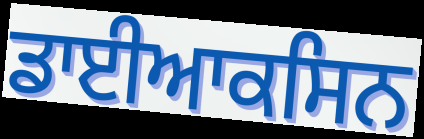
ਡਾਈਆਕਸਿਨ